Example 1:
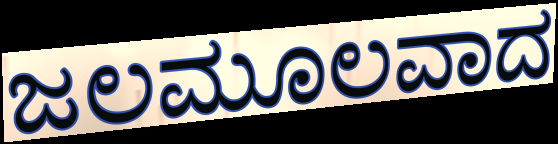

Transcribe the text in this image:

ಜಲಮೂಲವಾದ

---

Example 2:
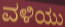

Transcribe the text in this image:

ವಳಿಯು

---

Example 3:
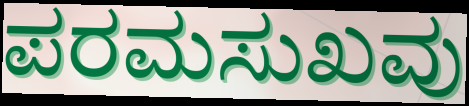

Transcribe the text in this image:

ಪರಮಸುಖವು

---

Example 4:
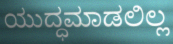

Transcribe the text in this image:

ಯುದ್ಧಮಾಡಲಿಲ್ಲ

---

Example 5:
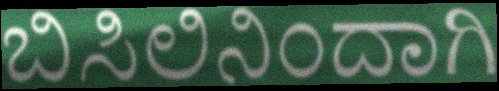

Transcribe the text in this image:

ಬಿಸಿಲಿನಿಂದಾಗಿ